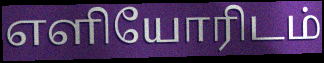
எளியோரிடம்